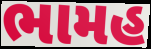
ભામહ